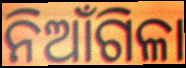
ନିଆଁଗିଳା